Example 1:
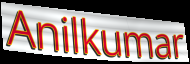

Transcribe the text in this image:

Anilkumar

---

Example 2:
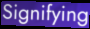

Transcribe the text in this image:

Signifying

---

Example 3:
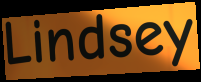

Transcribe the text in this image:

Lindsey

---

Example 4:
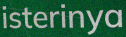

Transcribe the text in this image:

isterinya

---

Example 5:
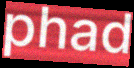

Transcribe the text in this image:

phad